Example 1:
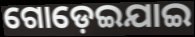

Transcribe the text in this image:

ଗୋଡ଼େଇଯାଇ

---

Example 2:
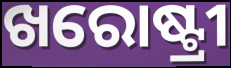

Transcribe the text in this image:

ଖରୋଷ୍ଟ୍ରୀ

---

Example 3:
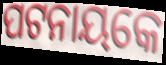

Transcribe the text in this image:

ପଟନାୟକେ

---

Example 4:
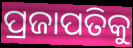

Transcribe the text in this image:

ପ୍ରଜାପତିକୁ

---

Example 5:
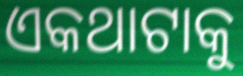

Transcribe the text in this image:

ଏକଥାଟାକୁ